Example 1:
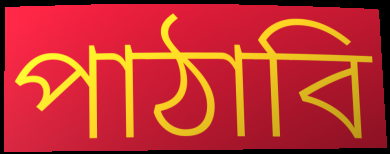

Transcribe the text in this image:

পাঠাবি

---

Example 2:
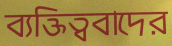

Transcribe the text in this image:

ব্যক্তিত্ববাদের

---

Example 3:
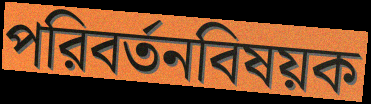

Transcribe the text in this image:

পরিবর্তনবিষয়ক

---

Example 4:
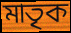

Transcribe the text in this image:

মাতৃক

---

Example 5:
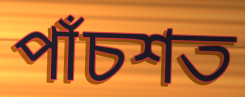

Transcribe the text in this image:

পাঁচশত